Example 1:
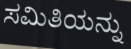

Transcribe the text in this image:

ಸಮಿತಿಯನ್ನು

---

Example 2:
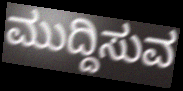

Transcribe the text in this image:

ಮುದ್ದಿಸುವ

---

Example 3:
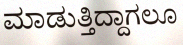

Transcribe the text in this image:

ಮಾಡುತ್ತಿದ್ದಾಗಲೂ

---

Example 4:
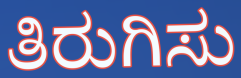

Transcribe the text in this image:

ತಿರುಗಿಸು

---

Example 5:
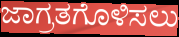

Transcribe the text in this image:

ಜಾಗ್ರತಗೊಳಿಸಲು